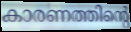
കാരണത്തിന്റെ